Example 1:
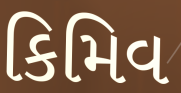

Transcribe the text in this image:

કિમિવ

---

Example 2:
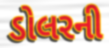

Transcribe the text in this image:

ડોલરની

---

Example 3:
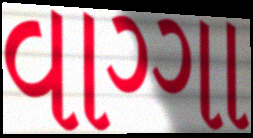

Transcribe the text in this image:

વાગ્ગા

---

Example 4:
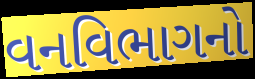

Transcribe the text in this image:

વનવિભાગનો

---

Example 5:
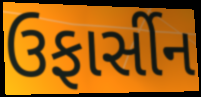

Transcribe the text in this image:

ઉફાર્સીન